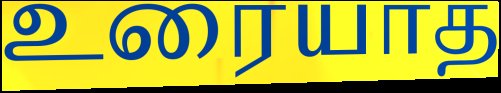
உரையாத